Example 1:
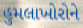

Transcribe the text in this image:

હુમલાખોરોને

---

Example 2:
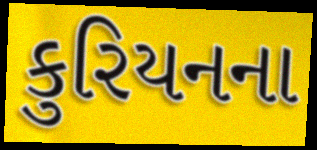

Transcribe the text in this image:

કુરિયનના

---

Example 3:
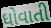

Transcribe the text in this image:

ધોવાતી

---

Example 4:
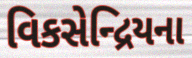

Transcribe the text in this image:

વિકસેન્દ્રિયના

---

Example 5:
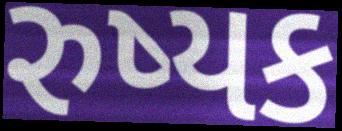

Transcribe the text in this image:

રુષ્યક